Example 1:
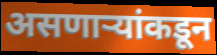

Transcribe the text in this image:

असणाऱ्यांकडून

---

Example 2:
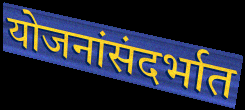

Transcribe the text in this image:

योजनांसंदर्भात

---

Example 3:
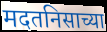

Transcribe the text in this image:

मदतनिसाच्या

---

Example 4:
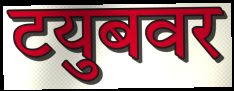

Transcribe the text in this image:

टयुबवर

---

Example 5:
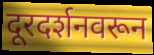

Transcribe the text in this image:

दूरदर्शनवरून